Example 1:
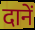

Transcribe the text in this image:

दानें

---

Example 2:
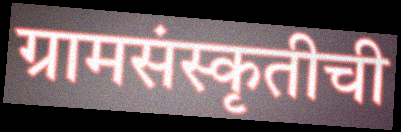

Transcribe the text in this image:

ग्रामसंस्कृतीची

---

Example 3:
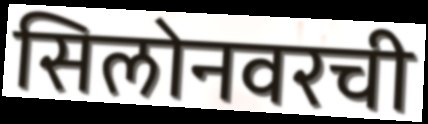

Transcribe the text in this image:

सिलोनवरची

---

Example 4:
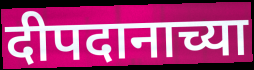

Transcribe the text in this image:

दीपदानाच्या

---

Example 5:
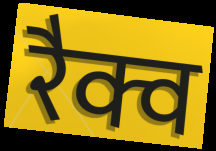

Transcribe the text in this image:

रैक्व